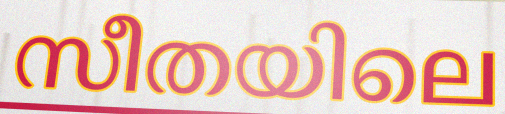
സീതയിലെ